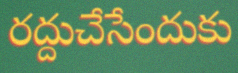
రద్దుచేసేందుకు